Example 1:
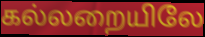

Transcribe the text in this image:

கல்லறையிலே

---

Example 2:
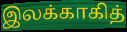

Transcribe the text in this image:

இலக்காகித்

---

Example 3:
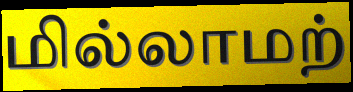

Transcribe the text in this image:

மில்லாமற்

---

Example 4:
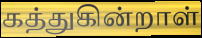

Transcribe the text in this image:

கத்துகின்றாள்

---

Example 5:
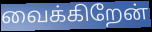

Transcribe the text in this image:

வைக்கிறேன்